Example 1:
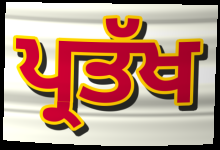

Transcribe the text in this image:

ਪ੍ਰਤੱਖ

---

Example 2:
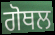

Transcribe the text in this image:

ਗੋਥਲ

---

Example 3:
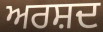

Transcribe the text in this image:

ਅਰਸ਼ਦ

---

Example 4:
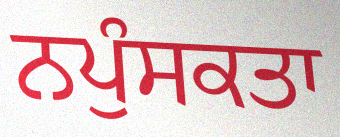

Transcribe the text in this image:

ਨਪੁੰਸਕਤਾ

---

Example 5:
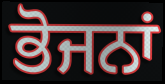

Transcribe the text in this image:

ਭੋਜਨਾਂ